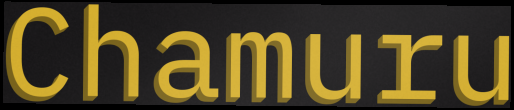
Chamuru